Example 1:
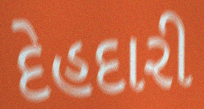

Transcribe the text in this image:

દેહદારી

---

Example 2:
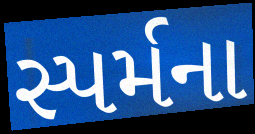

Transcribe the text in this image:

સ્પર્મના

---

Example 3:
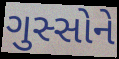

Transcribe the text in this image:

ગુસ્સોને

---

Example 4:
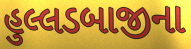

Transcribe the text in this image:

હુલ્લડબાજીના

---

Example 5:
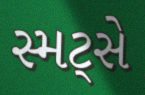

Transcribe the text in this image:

સ્મટ્સે